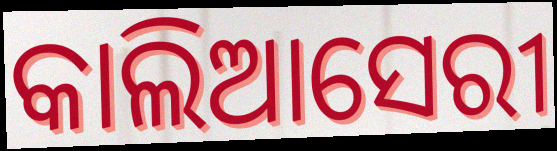
କାଲିଆସେରୀ